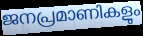
ജനപ്രമാണികളും